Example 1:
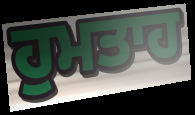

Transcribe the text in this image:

ਹੁਮਤਾਹ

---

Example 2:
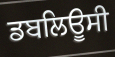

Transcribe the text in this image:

ਡਬਲਿਊਸੀ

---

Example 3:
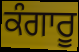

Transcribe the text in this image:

ਕੰਗਾਰੂ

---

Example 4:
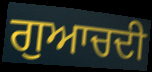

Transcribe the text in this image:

ਗੁਆਚਦੀ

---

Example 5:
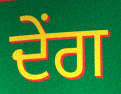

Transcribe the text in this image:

ਦੇਂਗ